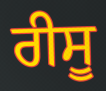
ਰੀਸੂ